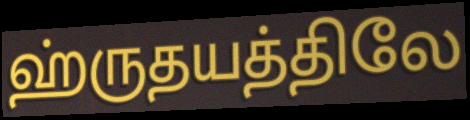
ஹ்ருதயத்திலே